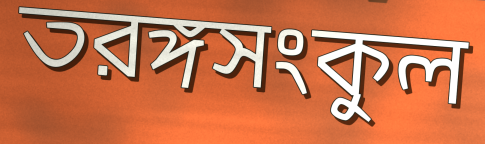
তরঙ্গসংকুল